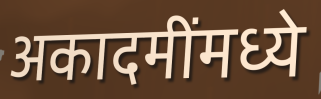
अकादमींमध्ये